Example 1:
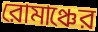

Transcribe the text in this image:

রোমাঞ্চের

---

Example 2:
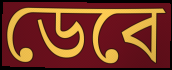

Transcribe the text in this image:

ডেবে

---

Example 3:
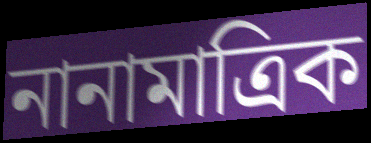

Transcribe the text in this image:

নানামাত্রিক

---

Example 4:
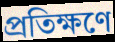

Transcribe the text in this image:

প্রতিক্ষণে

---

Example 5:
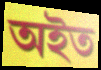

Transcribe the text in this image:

অইত